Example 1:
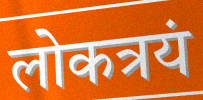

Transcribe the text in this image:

लोकत्रयं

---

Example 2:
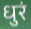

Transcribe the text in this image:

धुरं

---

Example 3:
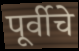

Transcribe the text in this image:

पूर्वीचे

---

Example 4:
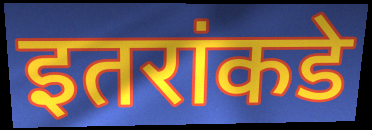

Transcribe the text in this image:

इतरांकडे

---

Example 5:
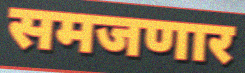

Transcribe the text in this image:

समजणार